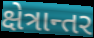
ક્ષેત્રાન્તર